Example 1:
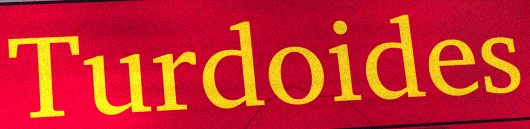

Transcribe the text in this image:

Turdoides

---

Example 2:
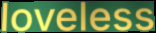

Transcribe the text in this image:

loveless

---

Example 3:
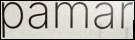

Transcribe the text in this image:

pamar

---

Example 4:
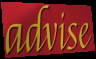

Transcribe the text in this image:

advise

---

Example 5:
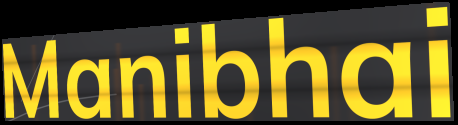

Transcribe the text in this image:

Manibhai